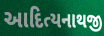
આદિત્યનાથજી